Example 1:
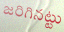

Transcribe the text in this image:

జరిగినట్టు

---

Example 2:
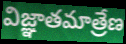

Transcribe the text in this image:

విజ్ఞాతమాత్రేణ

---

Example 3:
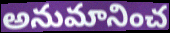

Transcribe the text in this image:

అనుమానించ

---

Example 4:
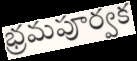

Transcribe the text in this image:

భ్రమపూర్వక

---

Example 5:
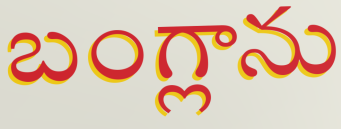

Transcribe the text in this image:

బంగ్లాను